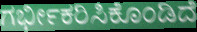
ಗರ್ಭೀಕರಿಸಿಕೊಂಡಿದೆ